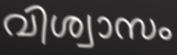
വിശ്വാസം